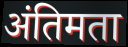
अंतिमता